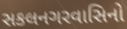
સકલનગરવાસિનો